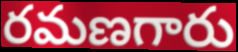
రమణగారు